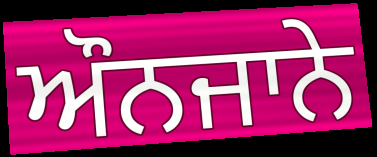
ਔਨਜਾਨੇ